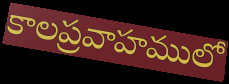
కాలప్రవాహములో